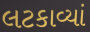
લટકાવ્યાં